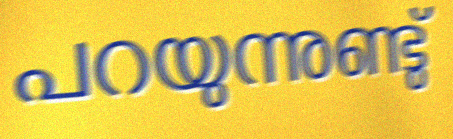
പറയുന്നുണ്ടു്